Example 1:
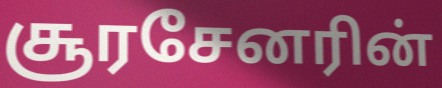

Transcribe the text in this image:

சூரசேனரின்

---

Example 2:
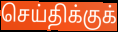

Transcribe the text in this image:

செய்திக்குக்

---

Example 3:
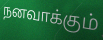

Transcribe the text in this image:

நனவாக்கும்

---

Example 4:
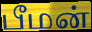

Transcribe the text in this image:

பீமன்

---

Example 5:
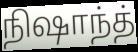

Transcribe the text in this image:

நிஷாந்த்